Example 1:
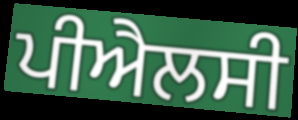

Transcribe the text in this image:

ਪੀਐਲਸੀ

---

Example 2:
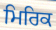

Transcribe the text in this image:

ਮਿਰਿਕ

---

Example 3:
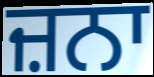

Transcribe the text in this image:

ਜ਼ਨਾ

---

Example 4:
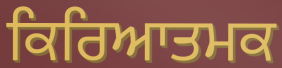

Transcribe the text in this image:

ਕਿਰਿਆਤਮਕ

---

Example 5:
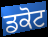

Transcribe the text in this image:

ਡਕੋਟ